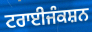
ਟਰਾਈਜੰਕਸ਼ਨ